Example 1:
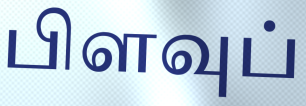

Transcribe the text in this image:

பிளவுப்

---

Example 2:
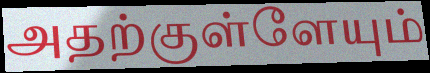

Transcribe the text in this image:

அதற்குள்ளேயும்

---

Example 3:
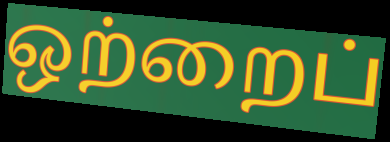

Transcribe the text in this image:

ஒற்றைப்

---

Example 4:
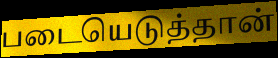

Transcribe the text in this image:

படையெடுத்தான்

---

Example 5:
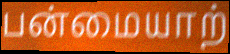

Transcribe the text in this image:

பன்மையாற்